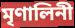
মৃণালিনী